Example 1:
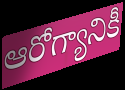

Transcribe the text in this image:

ఆరోగ్యానికీ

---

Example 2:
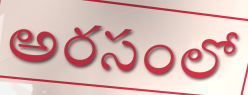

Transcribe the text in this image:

అరసంలో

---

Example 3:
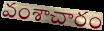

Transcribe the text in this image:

వంశాచారం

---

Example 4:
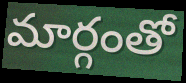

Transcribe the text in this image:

మార్గంతో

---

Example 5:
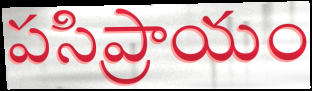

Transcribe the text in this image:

పసిప్రాయం